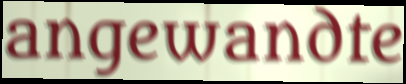
angewandte